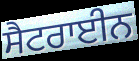
ਸੈਟਰਾਈਨ